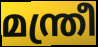
മന്ത്രീ